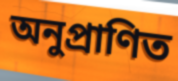
অনুপ্ৰাণিত